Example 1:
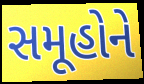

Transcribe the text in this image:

સમૂહોને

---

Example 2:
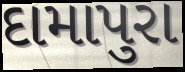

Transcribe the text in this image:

દામાપુરા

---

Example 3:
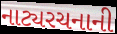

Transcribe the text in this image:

નાટ્યરચનાની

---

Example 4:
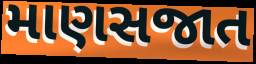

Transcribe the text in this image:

માણસજાત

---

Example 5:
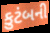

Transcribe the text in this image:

કુટંબની